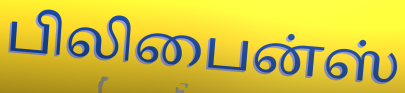
பிலிபைன்ஸ்